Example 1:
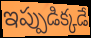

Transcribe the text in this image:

ఇప్పుడిక్కడే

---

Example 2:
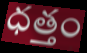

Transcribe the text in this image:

ధత్తం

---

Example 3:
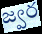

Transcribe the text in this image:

జ్వర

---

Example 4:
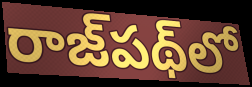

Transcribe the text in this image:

రాజ్‌పథ్‌లో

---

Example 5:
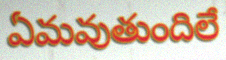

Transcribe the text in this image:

ఏమవుతుందిలే